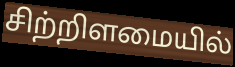
சிற்றிளமையில்